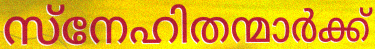
സ്നേഹിതന്മാർക്ക്